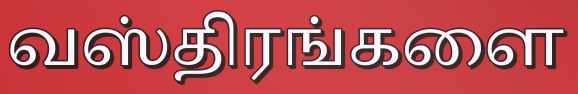
வஸ்திரங்களை